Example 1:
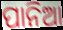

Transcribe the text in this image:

ପାନିଆ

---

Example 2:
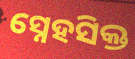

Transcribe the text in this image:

ସ୍ନେହସିକ୍ତ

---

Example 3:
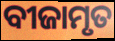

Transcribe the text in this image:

ବୀଜାମୃତ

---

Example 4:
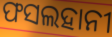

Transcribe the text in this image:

ଫସଲହାନୀ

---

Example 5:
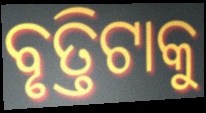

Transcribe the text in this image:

ବୃତ୍ତିଟାକୁ